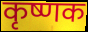
कृष्णक